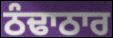
ਠੰਢਾਠਾਰ